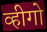
व्हीगो